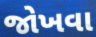
જોખવા